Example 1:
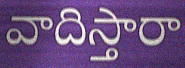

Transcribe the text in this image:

వాదిస్తారా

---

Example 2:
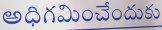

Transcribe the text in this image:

అధిగమించేందుకు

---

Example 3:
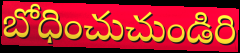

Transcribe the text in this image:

బోధించుచుండిరి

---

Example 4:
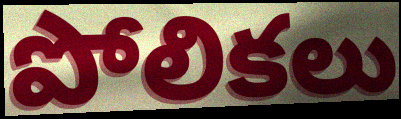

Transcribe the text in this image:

పోలికలు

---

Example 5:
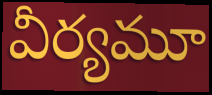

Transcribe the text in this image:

వీర్యమూ